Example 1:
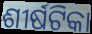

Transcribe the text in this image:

ଶୀର୍ଷଟିକା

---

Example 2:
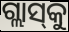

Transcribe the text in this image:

ଗ୍ଲାସ୍‌କୁ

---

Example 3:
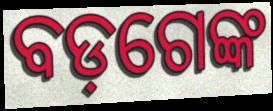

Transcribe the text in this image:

ବଡ଼ଗେଙ୍କ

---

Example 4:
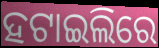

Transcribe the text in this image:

ହଟାଇଲିରେ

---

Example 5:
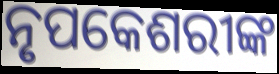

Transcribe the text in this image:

ନୃପକେଶରୀଙ୍କ